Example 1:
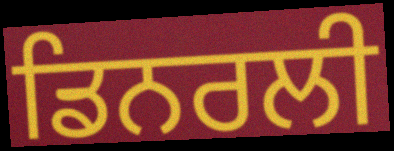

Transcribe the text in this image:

ਡਿਨਰਲੀ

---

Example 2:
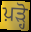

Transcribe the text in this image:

ਪ਼ੜ੍ਹੋ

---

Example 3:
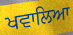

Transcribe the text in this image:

ਖਵਾਲਿਆ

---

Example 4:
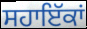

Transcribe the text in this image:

ਸਹਾਇੱਕਾਂ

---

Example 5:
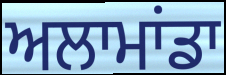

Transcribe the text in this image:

ਅਲਾਮਾਂਡਾ